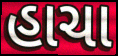
હાચા